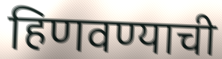
हिणवण्याची